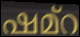
ഷമ്റ